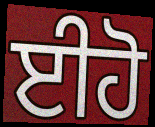
ਈਹੋ